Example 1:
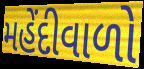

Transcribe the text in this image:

મહેંદીવાળો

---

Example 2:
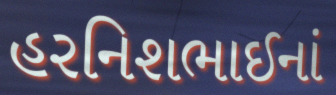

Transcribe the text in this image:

હરનિશભાઈનાં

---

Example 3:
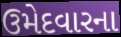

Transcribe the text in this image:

ઉમેદવારના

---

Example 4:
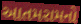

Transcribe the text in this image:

આતમરામનો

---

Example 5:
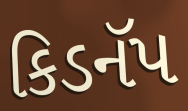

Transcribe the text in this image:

કિડનૅપ